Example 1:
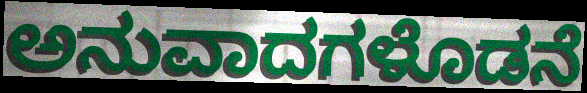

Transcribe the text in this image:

ಅನುವಾದಗಳೊಡನೆ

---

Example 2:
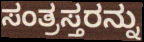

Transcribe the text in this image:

ಸಂತ್ರಸ್ತರನ್ನು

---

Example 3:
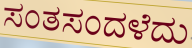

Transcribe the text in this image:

ಸಂತಸಂದಳೆದು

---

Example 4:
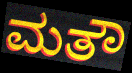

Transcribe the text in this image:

ಮತೌ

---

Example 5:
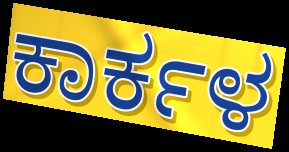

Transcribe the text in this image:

ಕಾರ್ಕಳ